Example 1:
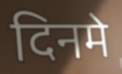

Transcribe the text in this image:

दिनमे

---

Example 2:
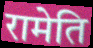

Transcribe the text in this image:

रामेति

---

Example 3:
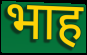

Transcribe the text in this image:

भाह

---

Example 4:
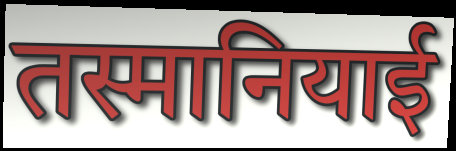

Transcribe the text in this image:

तस्मानियाई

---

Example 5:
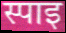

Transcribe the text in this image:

स्पाइ